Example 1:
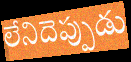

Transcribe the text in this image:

లేనిదెప్పుడు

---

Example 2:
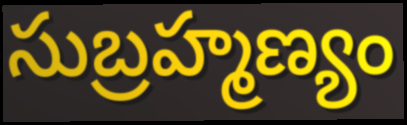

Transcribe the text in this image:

సుబ్రహ్మణ్యం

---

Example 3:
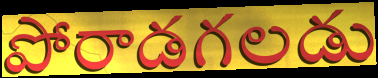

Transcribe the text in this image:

పోరాడగలడు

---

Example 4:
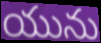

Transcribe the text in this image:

యును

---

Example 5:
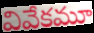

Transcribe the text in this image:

వివేకమూ